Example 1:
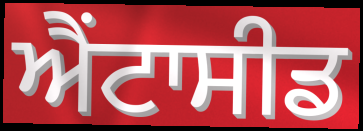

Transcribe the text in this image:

ਐਂਟਾਸੀਡ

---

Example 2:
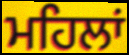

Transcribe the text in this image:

ਮਹਿਲਾਂ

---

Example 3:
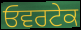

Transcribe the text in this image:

ਓਵਰਟੇਕ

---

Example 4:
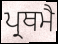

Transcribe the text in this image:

ਪ੍ਰਥਮੈ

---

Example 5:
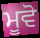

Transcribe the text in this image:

ਮੂਵੋ